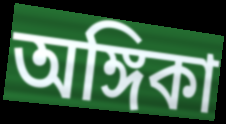
অঙ্গিকা